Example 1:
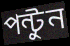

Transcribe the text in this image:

পন্টুন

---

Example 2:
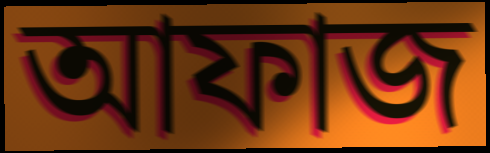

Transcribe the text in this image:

আফাজ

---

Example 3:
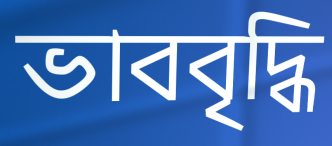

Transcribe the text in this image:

ভাববৃদ্ধি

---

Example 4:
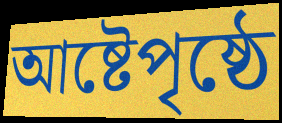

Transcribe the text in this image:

আষ্টেপৃষ্ঠে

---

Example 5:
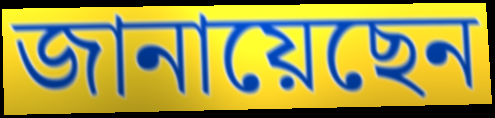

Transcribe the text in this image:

জানায়েছেন